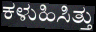
ಕಳುಹಿಸಿತ್ತು